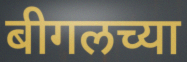
बीगलच्या